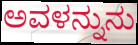
ಅವಳನ್ನುನು